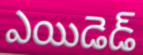
ఎయిడెడ్